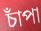
চাঁপা